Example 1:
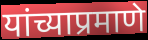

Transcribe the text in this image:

यांच्याप्रमाणे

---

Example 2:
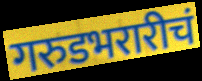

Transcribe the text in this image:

गरुडभरारीचं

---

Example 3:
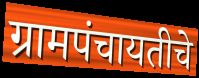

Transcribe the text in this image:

ग्रामपंचायतीचे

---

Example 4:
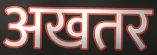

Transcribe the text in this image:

अखतर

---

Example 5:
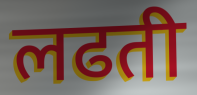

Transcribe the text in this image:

लढती